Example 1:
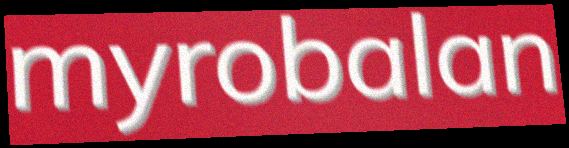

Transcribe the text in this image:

myrobalan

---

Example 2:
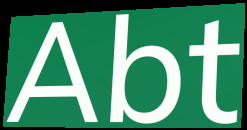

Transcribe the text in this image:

Abt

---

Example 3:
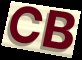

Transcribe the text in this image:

CB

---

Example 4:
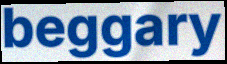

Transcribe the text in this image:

beggary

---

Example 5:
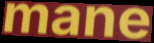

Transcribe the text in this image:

mane